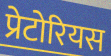
प्रेटोरियस